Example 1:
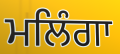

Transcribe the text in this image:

ਮਲਿੰਗਾ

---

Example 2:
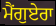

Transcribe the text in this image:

ਮੈਂਗੁਏਰਾ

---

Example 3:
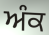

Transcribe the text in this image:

ਅੰਕ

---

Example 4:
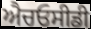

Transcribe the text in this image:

ਐਚਓਸੀਡੀ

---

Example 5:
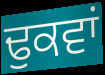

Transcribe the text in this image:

ਢੁਕਵਾਂ